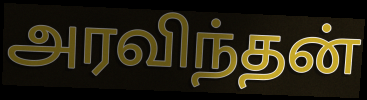
அரவிந்தன்